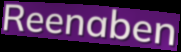
Reenaben